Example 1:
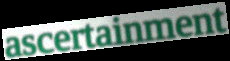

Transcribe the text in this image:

ascertainment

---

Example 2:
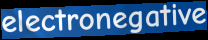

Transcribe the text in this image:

electronegative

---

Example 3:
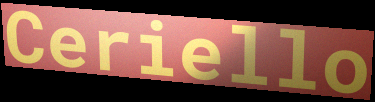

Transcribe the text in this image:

Ceriello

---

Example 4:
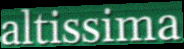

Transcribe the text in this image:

altissima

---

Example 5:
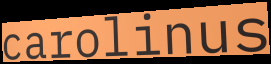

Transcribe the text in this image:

carolinus